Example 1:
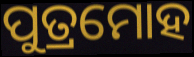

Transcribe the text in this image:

ପୁତ୍ରମୋହ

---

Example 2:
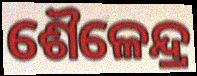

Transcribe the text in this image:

ଶୈଳେନ୍ଦ୍ର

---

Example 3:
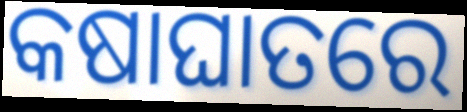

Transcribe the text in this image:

କଷାଘାତରେ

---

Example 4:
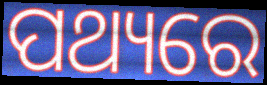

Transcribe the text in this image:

ପଥ୍ୟରେ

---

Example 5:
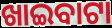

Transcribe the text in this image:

ଖାଇବାଟା